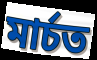
মাৰ্চত